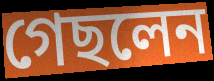
গেছলেন